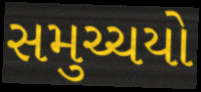
સમુચ્ચયો